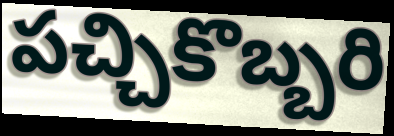
పచ్చికొబ్బరి